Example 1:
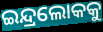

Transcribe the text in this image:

ଇନ୍ଦ୍ରଲୋକକୁ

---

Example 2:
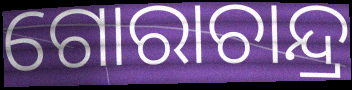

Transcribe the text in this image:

ଗୋରାଚାନ୍ଦ୍ର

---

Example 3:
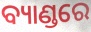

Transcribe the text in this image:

ବ୍ୟାଣ୍ଡରେ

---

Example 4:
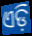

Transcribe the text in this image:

ଏଡ଼ି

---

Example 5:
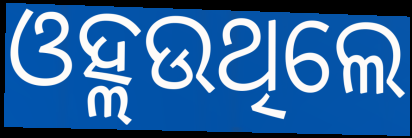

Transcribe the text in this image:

ଓହ୍ଲଉଥିଲେ